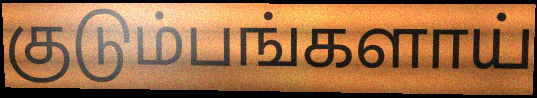
குடும்பங்களாய்